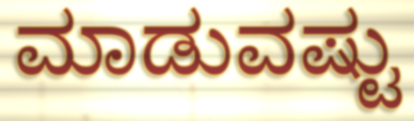
ಮಾಡುವಷ್ಟು